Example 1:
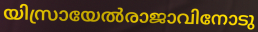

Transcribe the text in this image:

യിസ്രായേൽരാജാവിനോടു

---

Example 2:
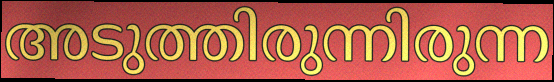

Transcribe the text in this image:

അടുത്തിരുന്നിരുന്ന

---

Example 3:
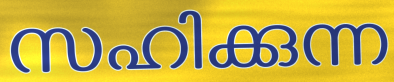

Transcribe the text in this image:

സഹിക്കുന്ന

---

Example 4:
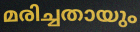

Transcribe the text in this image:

മരിച്ചതായും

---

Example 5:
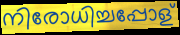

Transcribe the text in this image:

നിരോധിച്ചപ്പോള്